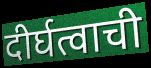
दीर्घत्वाची